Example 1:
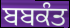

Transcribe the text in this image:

ਬਬਕੰਤ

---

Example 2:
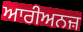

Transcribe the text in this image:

ਆਰੀਅਨਜ਼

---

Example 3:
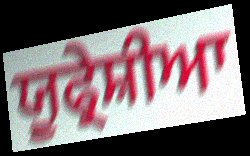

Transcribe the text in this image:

ਯੂਫ੍ਰੇਸ਼ੀਆ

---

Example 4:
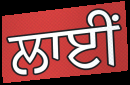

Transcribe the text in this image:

ਲਾਈਂ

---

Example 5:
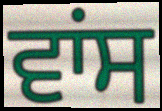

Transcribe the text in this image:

ਵਾਂਸ